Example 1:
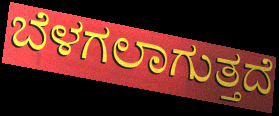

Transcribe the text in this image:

ಬೆಳಗಲಾಗುತ್ತದೆ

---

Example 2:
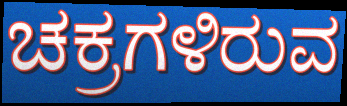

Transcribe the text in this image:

ಚಕ್ರಗಳಿರುವ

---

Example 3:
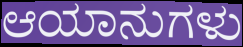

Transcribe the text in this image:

ಆಯಾನುಗಳು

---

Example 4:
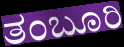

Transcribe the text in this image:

ತಂಬೂರಿ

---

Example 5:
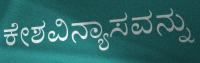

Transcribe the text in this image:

ಕೇಶವಿನ್ಯಾಸವನ್ನು